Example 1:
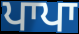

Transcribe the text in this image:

ਪਾਪਾ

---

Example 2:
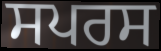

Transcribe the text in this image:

ਸਪਰਸ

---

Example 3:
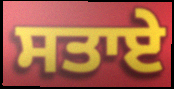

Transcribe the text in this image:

ਸਤਾਏ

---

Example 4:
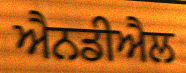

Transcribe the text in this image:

ਐਨਡੀਐਲ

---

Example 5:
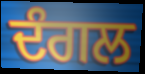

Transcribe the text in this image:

ਦੰਗਲ